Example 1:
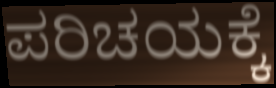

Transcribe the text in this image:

ಪರಿಚಯಕ್ಕೆ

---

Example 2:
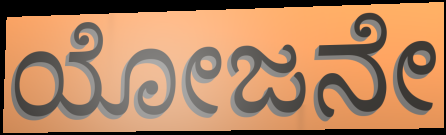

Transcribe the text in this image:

ಯೋಜನೇ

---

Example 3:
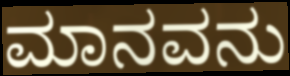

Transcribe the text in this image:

ಮಾನವನು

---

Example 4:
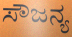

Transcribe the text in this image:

ಸೌಜನ್ಯ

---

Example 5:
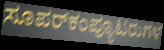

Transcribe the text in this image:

ಸೂಪರ್‌ಕಂಪ್ಯೂಟರುಗಳ